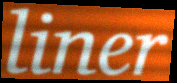
liner